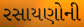
રસાયણોની